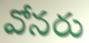
వోనరు